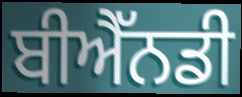
ਬੀਐੱਨਡੀ